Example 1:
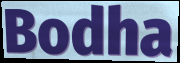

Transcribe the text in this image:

Bodha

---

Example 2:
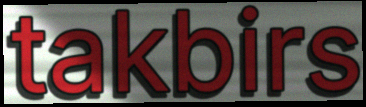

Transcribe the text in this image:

takbirs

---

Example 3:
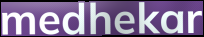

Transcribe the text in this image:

medhekar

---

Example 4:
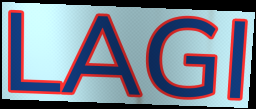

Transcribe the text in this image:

LAGI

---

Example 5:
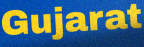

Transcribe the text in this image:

Gujarat